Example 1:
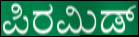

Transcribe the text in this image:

ಪಿರಮಿಡ್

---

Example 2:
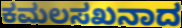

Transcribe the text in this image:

ಕಮಲಸಖನಾದ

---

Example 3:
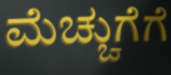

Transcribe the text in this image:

ಮೆಚ್ಚುಗೆಗೆ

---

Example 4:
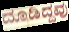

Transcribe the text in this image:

ದೂಡಿದ್ದವು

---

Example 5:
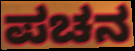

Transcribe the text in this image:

ಪಚನ